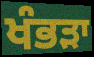
ਖੰਭੜਾ